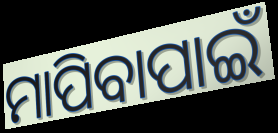
ମାପିବାପାଇଁ